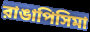
রাঙাপিসিমা